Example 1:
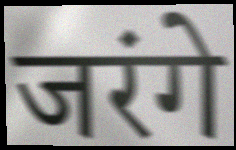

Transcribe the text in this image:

जरंगे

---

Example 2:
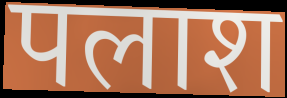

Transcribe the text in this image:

पलाश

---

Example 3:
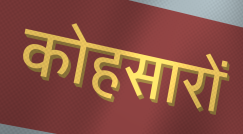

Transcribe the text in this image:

कोहसारों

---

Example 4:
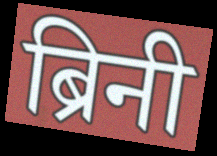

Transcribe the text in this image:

ब्रिनी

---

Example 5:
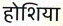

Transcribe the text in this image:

होशिया